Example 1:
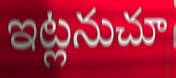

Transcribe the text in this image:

ఇట్లనుచూ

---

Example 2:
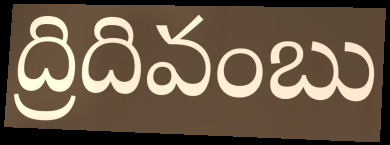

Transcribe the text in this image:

ద్రిదివంబు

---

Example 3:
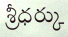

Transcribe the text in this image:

శ్రీధర్కు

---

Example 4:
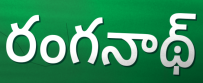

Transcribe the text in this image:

రంగనాథ్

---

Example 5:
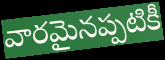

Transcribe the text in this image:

వారమైనప్పటికీ